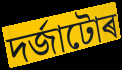
দৰ্জাটোৰ